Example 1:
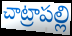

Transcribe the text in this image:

చాట్రాపల్లి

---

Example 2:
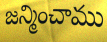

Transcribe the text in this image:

జన్మించాము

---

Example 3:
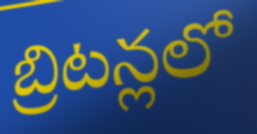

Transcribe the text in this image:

బ్రిటన్లలో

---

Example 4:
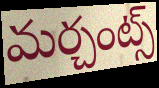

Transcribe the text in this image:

మర్చంట్స్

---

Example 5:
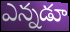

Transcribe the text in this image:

ఎన్నడూ